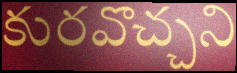
కురవొచ్చని